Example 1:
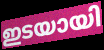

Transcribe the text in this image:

ഇടയായി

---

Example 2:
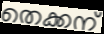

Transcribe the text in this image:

തെക്കന്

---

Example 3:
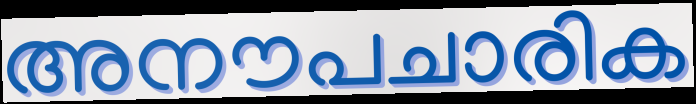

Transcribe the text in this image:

അനൗപചാരിക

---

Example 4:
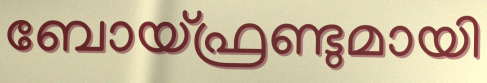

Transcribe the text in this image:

ബോയ്ഫ്രണ്ടുമായി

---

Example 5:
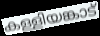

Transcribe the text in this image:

കള്ളിയങ്കാട്